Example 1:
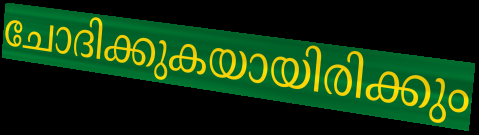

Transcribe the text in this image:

ചോദിക്കുകയായിരിക്കും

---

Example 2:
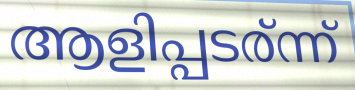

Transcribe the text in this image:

ആളിപ്പടര്ന്ന്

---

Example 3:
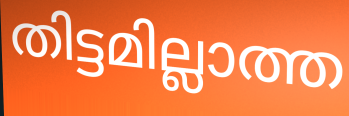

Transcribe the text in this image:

തിട്ടമില്ലാത്ത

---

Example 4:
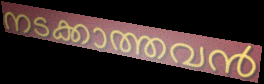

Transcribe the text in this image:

നടക്കാത്തവൻ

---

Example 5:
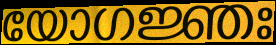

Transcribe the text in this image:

യോഗജ്ഞഃ